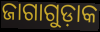
ଜାଗାଗୁଡ଼ାକ